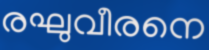
രഘുവീരനെ